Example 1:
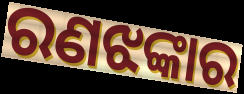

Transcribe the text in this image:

ରଣଝଙ୍କାର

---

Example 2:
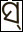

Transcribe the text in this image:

ସ୍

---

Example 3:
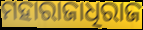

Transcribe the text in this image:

ମହାରାଜାଧିରାଜ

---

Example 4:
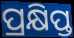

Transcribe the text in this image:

ପ୍ରକ୍ଷିପ୍ତ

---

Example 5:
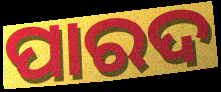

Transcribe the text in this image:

ପାରଦ